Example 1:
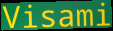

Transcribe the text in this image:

Visami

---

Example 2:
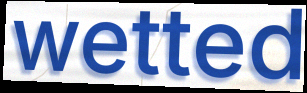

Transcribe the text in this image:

wetted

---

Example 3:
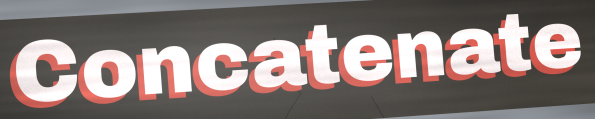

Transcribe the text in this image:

Concatenate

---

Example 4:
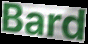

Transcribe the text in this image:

Bard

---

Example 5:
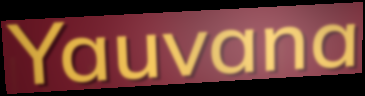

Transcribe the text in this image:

Yauvana